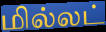
மில்லட்